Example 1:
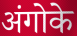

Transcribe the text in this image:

अंगोके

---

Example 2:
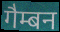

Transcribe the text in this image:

गैम्बन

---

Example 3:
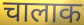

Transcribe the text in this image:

चालाक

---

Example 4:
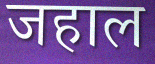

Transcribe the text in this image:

जहाल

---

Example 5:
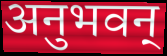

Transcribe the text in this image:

अनुभवन्